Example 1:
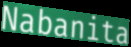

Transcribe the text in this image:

Nabanita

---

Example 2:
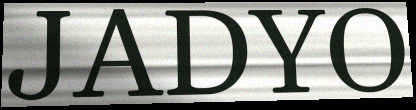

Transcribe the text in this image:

JADYO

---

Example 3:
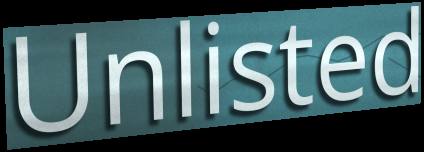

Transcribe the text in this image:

Unlisted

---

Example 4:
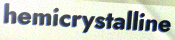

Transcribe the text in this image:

hemicrystalline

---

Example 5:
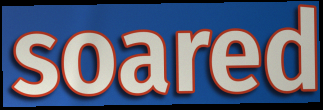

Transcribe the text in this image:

soared